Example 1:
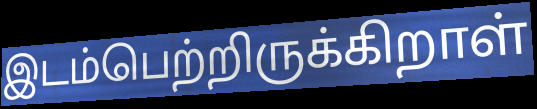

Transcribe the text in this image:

இடம்பெற்றிருக்கிறாள்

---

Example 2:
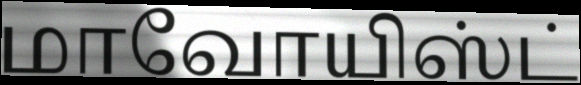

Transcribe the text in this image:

மாவோயிஸ்ட்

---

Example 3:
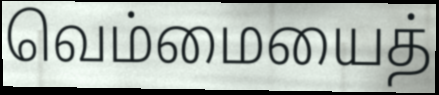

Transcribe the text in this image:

வெம்மையைத்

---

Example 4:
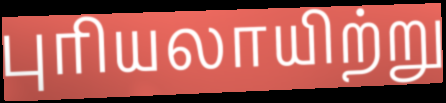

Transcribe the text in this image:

புரியலாயிற்று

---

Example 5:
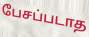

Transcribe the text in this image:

பேசப்படாத